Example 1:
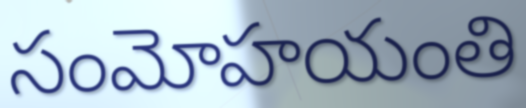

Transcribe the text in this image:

సంమోహయంతి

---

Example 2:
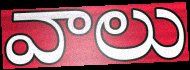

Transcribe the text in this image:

వాలు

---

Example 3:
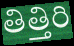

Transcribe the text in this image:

తిత్తిరి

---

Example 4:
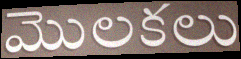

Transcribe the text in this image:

మొలకలు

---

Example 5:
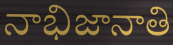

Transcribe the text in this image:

నాభిజానాతి